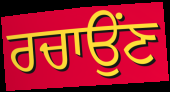
ਰਚਾਉਂਣ